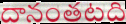
దానంతటది